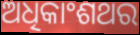
ଅଧିକାଂଶଥର